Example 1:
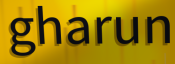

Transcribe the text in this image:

gharun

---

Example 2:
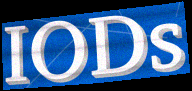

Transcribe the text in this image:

IODs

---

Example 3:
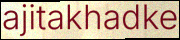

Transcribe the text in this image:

ajitakhadke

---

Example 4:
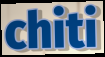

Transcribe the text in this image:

chiti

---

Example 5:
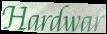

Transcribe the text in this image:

Hardwar